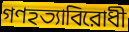
গণহত্যাবিরোধী